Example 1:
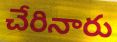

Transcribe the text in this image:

చేరినారు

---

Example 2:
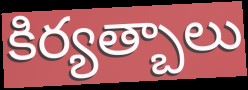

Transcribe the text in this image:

కిర్యత్బాలు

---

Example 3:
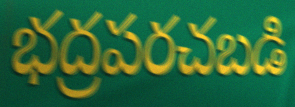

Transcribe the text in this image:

భద్రపరచబడి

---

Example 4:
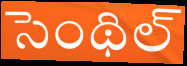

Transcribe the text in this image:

సెంథిల్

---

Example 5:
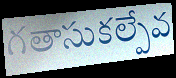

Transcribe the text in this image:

గతాసుకల్పేవ